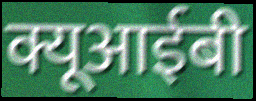
क्यूआईबी